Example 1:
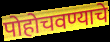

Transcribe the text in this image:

पोहोचवण्याचे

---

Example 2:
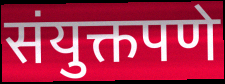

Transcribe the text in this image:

संयुक्तपणे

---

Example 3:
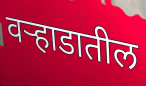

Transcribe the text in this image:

वऱ्हाडातील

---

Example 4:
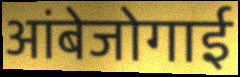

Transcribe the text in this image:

आंबेजोगाई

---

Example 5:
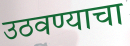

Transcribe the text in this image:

उठवण्याचा